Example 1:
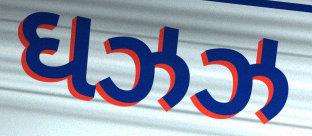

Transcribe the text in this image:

ઘઝઝ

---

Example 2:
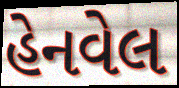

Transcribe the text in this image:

હેનવેલ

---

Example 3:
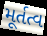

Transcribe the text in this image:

મૂર્તત્વ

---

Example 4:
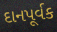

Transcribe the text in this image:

દાનપૂર્વક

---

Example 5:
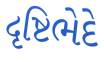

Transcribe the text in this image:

દૃષ્ટિભેદે